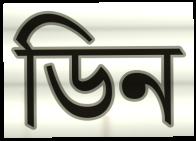
ডিন